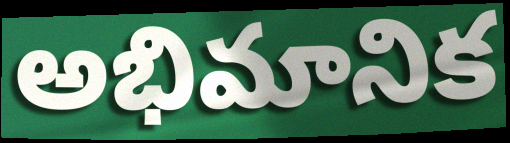
అభిమానిక